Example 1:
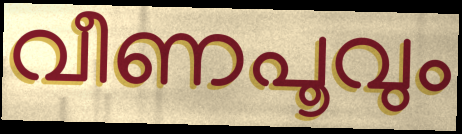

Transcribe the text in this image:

വീണപൂവും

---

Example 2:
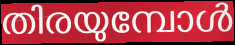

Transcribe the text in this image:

തിരയുമ്പോൾ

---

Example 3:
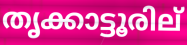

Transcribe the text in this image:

തൃക്കാട്ടൂരില്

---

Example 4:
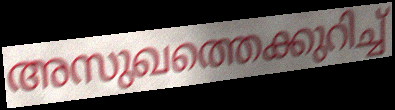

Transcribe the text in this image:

അസുഖത്തെക്കുറിച്ച്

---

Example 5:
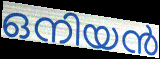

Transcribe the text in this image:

ഒനിയൻ